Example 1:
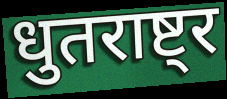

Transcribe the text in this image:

धुतराष्ट्र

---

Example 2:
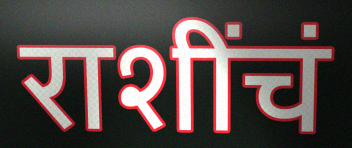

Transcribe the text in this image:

राशींचं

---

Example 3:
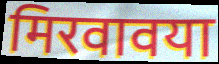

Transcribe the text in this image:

मिरवावया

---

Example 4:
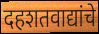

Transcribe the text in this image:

दहशतवाद्यांचे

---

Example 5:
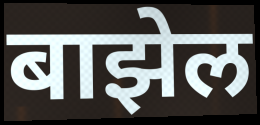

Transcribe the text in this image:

बाझेल